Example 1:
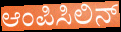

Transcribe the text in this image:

ಆಂಪಿಸಿಲಿನ್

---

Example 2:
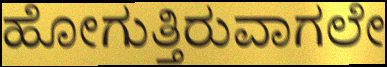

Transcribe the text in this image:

ಹೋಗುತ್ತಿರುವಾಗಲೇ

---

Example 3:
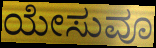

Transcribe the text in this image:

ಯೇಸುವೂ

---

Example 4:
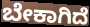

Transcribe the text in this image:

ಬೇಕಾಗಿದೆ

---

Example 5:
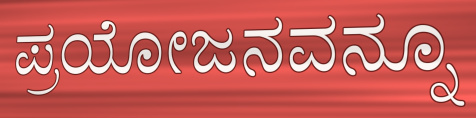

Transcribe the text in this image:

ಪ್ರಯೋಜನವನ್ನೂ